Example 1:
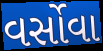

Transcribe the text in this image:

વર્સોવા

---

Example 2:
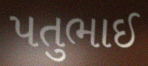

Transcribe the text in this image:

પતુભાઈ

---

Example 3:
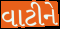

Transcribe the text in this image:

વાટીને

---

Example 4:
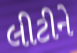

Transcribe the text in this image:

લીટીને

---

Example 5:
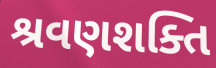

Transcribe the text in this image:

શ્રવણશક્તિ